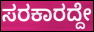
ಸರಕಾರದ್ದೇ